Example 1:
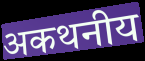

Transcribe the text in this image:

अकथनीय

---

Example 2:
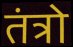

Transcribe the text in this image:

तंत्रो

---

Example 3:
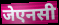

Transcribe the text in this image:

जेएनसी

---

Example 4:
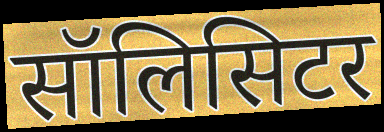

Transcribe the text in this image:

सॉलिसिटर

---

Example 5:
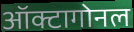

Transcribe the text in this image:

ऑक्टागोनल